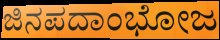
ಜಿನಪದಾಂಭೋಜ